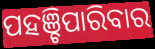
ପହଞ୍ଚିପାରିବାର